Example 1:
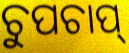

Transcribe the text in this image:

ଚୁପଚାପ୍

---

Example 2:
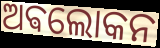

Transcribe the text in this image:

ଅଵଲୋକନ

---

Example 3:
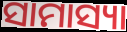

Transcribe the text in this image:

ସାମାସ୍ୟା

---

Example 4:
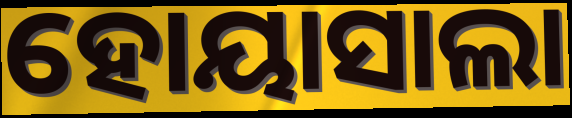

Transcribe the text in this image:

ହୋୟାସାଲା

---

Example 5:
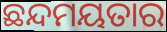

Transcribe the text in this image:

ଛନ୍ଦମୟତାର